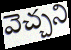
వెచ్చని